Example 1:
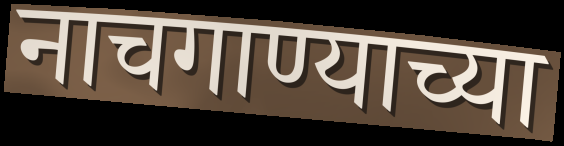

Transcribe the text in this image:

नाचगाण्याच्या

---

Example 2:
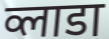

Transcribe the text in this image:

व्लाडा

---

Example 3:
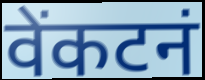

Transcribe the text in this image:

वेंकटनं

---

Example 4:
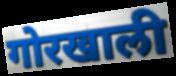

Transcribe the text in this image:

गोरखाली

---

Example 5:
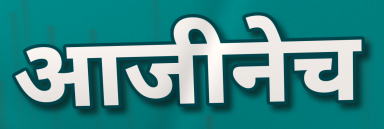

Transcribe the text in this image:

आजीनेच